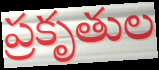
ప్రకృతుల